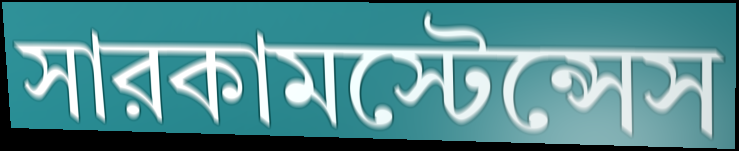
সারকামস্টেন্সেস